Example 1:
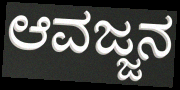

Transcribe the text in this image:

ಆವಜ್ಜನ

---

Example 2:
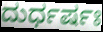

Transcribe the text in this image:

ದುರ್ಧರ್ಷಃ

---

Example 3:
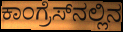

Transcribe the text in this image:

ಕಾಂಗ್ರೆಸ್‌ನಲ್ಲಿನ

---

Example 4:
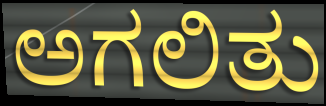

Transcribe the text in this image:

ಅಗಲಿತು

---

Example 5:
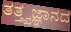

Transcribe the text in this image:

ತತ್ತ್ವಜ್ಞಾನದ